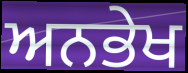
ਅਨਭੇਖ